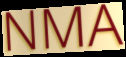
NMA